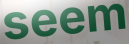
seem